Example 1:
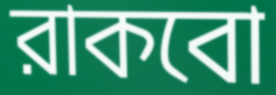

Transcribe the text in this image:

রাকবো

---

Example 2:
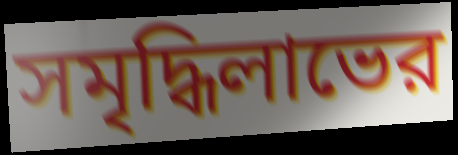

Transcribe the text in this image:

সমৃদ্ধিলাভের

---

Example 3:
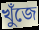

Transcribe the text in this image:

খুঁজে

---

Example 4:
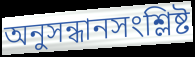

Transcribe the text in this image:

অনুসন্ধানসংশ্লিষ্ট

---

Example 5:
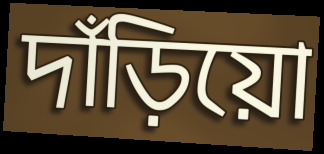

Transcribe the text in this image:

দাঁড়িয়ো